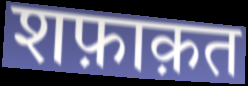
शफ़ाक़त